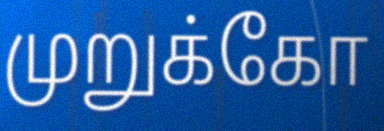
முறுக்கோ